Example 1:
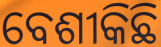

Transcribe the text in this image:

ବେଶୀକିଛି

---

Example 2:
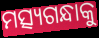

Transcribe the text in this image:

ମତ୍ସ୍ୟଗନ୍ଧାକୁ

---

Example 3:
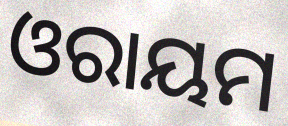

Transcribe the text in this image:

ଓରାୟମ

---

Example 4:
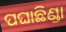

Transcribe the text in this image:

ପଘାଛିଣ୍ଡା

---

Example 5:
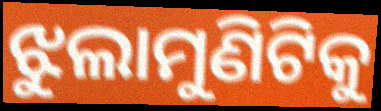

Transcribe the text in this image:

ଝୁଲାମୁଣିଟିକୁ